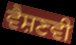
ਵੈਸ਼ਣਵੀ